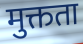
मुक्तता